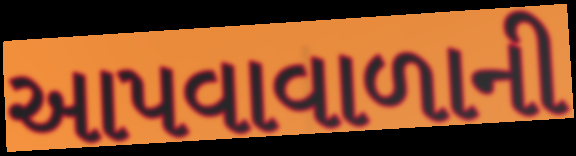
આપવાવાળાની